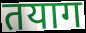
तयाग